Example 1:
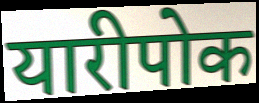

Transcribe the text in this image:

यारीपोक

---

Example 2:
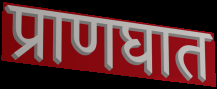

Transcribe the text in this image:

प्राणघात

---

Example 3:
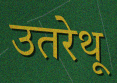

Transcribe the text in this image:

उतरेथू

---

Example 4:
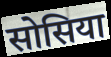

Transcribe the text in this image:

सोसिया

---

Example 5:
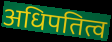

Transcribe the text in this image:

अधिपतित्व